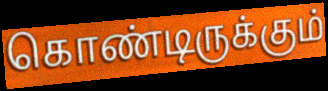
கொண்டிருக்கும்